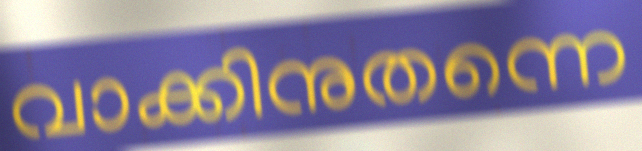
വാക്കിനുതന്നെ